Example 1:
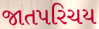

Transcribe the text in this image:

જાતપરિચય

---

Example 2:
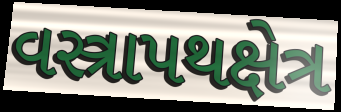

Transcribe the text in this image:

વસ્ત્રાપથક્ષેત્ર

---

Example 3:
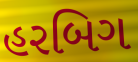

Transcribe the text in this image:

હરબિગ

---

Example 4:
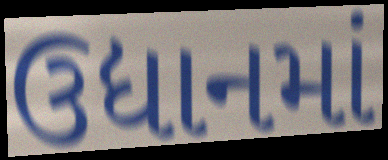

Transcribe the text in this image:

ઉદ્યાનમાં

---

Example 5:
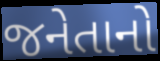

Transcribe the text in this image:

જનેતાનો